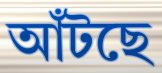
আঁটছে